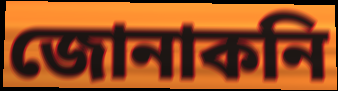
জোনাকনি